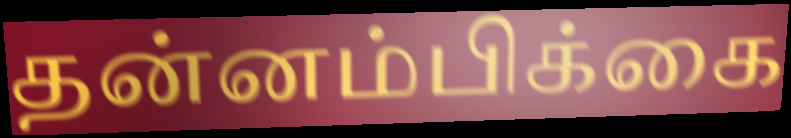
தன்னம்பிக்கை